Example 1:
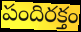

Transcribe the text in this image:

పందిరక్తం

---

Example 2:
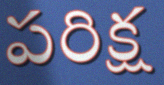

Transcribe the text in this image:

పరిక్ష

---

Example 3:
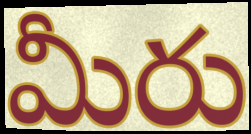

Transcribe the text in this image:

మీరు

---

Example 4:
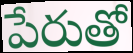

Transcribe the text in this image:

పేరుతో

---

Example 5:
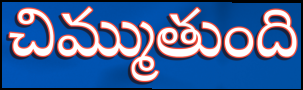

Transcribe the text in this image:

చిమ్ముతుంది